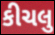
કીચલુ